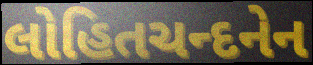
લોહિતચન્દનેન